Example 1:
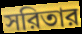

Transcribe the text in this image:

সরিতার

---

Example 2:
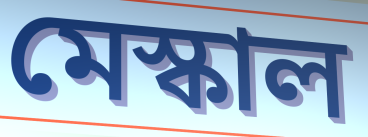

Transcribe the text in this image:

মেস্কাল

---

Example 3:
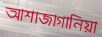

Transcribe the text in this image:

আশাজাগানিয়া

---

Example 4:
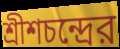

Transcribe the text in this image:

শ্রীশচন্দ্রের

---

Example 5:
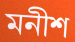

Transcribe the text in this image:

মনীশ